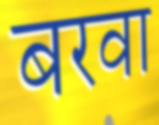
बरवा